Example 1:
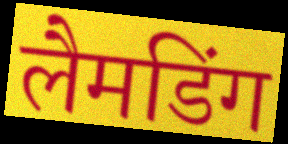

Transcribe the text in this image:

लैमडिंग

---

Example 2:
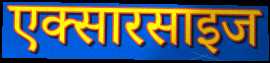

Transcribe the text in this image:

एक्सारसाइज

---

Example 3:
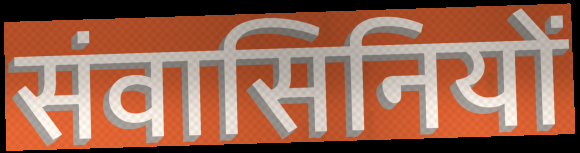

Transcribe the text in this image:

संवासिनियों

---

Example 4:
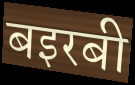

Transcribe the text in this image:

बइरबी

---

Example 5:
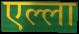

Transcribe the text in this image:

एल्ला